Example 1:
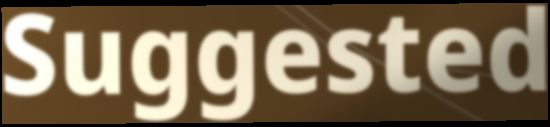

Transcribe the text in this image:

Suggested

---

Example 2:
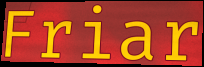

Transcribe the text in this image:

Friar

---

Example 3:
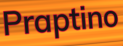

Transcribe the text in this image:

Praptino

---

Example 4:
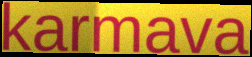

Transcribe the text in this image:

karmava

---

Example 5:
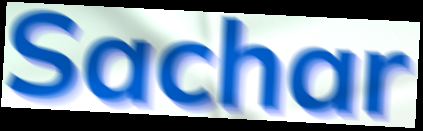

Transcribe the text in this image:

Sachar